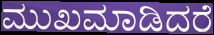
ಮುಖಮಾಡಿದರೆ